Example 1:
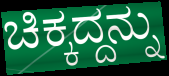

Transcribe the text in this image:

ಚಿಕ್ಕದ್ದನ್ನು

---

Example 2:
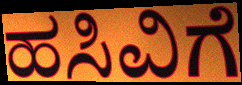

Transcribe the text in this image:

ಹಸಿವಿಗೆ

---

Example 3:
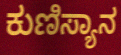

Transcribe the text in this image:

ಕುಣಿಸ್ಯಾನ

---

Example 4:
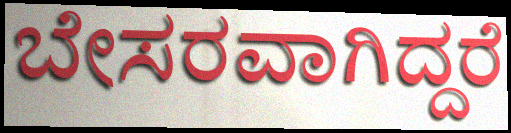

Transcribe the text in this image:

ಬೇಸರವಾಗಿದ್ದರೆ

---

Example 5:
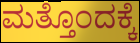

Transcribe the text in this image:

ಮತ್ತೊಂದಕ್ಕೆ